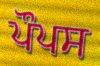
ਪੌਪਸ